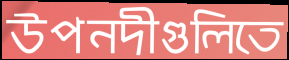
উপনদীগুলিতে